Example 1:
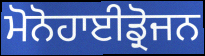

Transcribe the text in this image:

ਮੋਨੋਹਾਈਡ੍ਰੋਜਨ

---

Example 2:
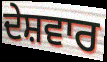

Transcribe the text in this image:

ਦੇਸ਼ਵਾਰ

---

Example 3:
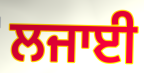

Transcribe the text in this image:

ਲਜਾਈ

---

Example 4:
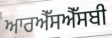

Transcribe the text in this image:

ਆਰਐੱਸਐੱਸਬੀ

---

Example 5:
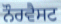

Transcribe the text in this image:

ਨੌਰਵੈਸਟ